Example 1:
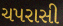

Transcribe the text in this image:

ચપરાસી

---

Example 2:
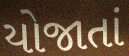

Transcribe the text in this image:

યોજાતાં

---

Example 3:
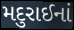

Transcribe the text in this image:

મદુરાઈનાં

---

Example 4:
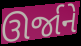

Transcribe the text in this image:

ઊર્જાને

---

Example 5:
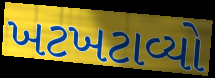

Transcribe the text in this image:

ખટખટાવ્યો